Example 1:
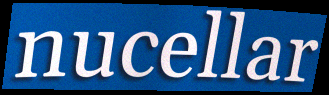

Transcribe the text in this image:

nucellar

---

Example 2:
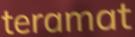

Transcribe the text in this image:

teramat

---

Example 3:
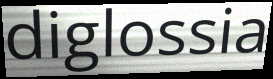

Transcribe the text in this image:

diglossia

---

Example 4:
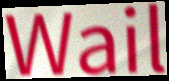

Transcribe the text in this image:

Wail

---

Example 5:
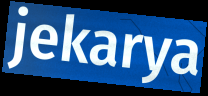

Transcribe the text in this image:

jekarya